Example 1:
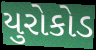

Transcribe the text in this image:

યુરોકોડ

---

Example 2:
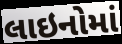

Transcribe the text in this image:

લાઇનોમાં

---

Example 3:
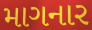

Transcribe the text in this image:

માગનાર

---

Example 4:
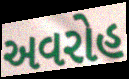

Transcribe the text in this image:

અવરોહ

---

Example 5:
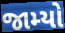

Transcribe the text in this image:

જામ્યો